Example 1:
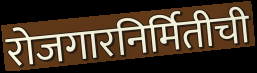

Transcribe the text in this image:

रोजगारनिर्मितीची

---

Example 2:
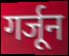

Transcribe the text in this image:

गर्जून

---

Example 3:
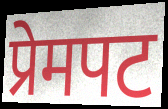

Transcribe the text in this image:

प्रेमपट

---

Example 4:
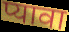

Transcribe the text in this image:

प्यावा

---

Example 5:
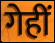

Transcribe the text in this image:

गेहीं